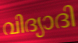
വിദ്യാദി